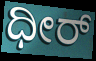
ಧೀರ್